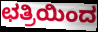
ಛತ್ರಿಯಿಂದ